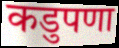
कडुपणा